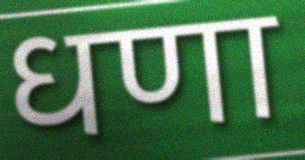
धणा